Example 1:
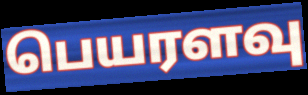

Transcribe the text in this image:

பெயரளவு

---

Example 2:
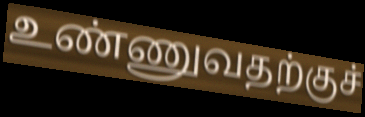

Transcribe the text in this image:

உண்ணுவதற்குச்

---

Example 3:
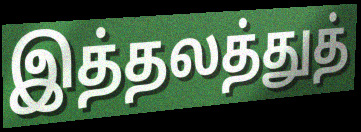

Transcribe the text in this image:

இத்தலத்துத்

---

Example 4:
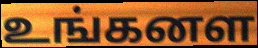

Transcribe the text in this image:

உங்கனள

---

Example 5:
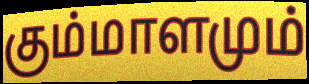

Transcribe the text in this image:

கும்மாளமும்